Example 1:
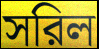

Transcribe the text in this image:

সরিল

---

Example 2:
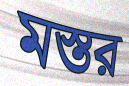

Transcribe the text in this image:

মস্তর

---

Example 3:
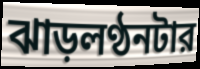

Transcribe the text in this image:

ঝাড়লণ্ঠনটার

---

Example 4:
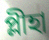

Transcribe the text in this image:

প্লীহা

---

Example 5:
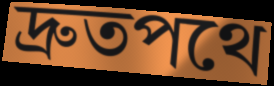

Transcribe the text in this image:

দ্রুতপথে